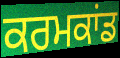
ਕਰਮਕਾਂਡ